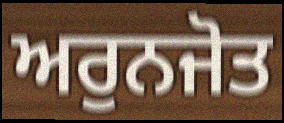
ਅਰੁਨਜੋਤ